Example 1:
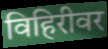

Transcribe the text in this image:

विहिरीवर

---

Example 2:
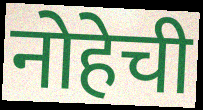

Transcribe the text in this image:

नोहेची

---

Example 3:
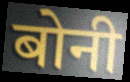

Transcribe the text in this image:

बोनी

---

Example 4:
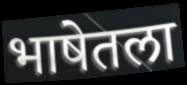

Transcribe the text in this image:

भाषेतला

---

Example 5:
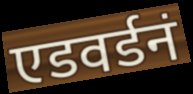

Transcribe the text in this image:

एडवर्डनं